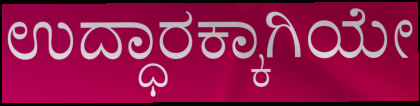
ಉದ್ಧಾರಕ್ಕಾಗಿಯೇ